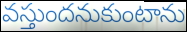
వస్తుందనుకుంటాను